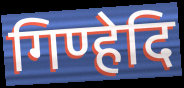
गिण्हेदि